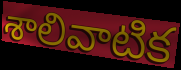
శాలివాటిక